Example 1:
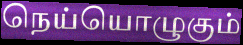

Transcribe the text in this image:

நெய்யொழுகும்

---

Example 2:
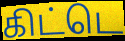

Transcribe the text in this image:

கிட்டெ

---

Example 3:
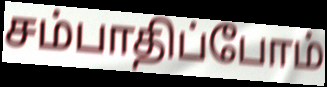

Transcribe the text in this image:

சம்பாதிப்போம்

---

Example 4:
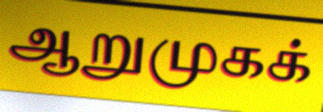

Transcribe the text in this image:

ஆறுமுகக்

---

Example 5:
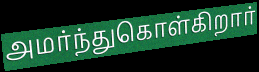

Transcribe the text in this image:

அமர்ந்துகொள்கிறார்